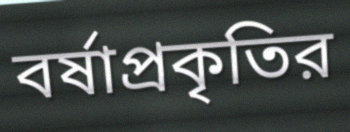
বর্ষাপ্রকৃতির